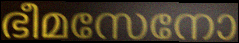
ഭീമസേനോ